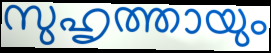
സുഹൃത്തായും